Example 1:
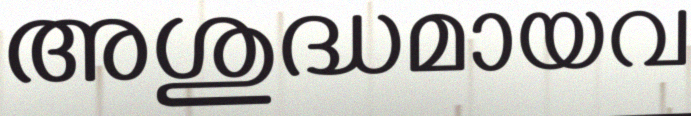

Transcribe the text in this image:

അശുദ്ധമായവ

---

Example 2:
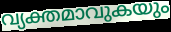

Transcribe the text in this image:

വ്യക്തമാവുകയും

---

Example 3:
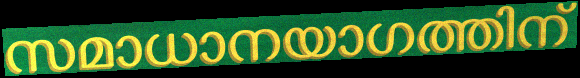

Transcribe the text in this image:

സമാധാനയാഗത്തിന്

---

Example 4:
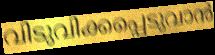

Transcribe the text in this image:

വിടുവിക്കപ്പെടുവാൻ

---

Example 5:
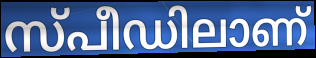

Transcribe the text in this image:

സ്പീഡിലാണ്